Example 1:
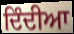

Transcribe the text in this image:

ਦਿੰਦੀਆ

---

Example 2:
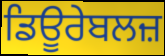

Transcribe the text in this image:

ਡਿਊਰੇਬਲਜ਼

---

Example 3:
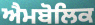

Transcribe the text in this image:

ਐਮਬੋਲਿਕ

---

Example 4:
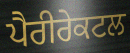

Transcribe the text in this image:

ਪੈਰੀਰੇਕਟਲ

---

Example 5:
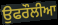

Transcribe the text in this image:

ਉਫਰੌਲੀਆ